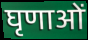
घृणाओं